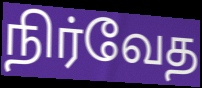
நிர்வேத